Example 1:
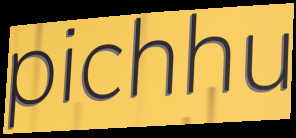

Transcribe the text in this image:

pichhu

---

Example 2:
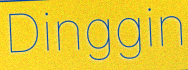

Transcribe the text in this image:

Dinggin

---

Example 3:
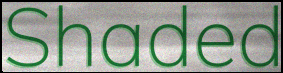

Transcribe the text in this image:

Shaded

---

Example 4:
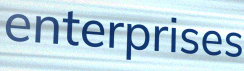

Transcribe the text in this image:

enterprises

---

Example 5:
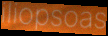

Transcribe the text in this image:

iliopsoas